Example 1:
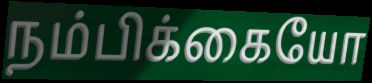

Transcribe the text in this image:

நம்பிக்கையோ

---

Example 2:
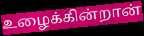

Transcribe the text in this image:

உழைக்கின்றான்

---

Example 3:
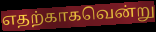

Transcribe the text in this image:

எதற்காகவென்று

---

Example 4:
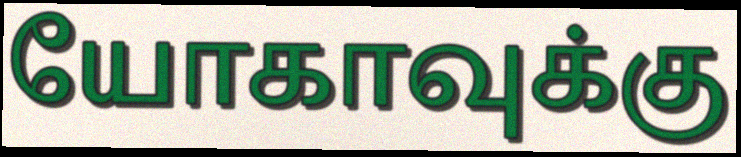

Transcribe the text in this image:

யோகாவுக்கு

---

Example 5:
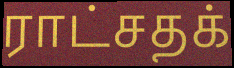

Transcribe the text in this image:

ராட்சதக்